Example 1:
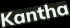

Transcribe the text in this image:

Kantha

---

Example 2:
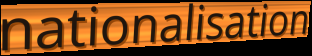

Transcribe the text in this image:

nationalisation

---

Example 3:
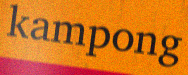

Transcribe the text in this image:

kampong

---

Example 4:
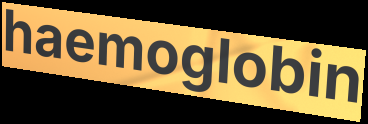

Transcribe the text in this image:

haemoglobin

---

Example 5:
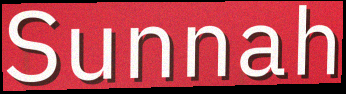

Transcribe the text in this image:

Sunnah